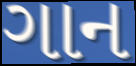
ગાન